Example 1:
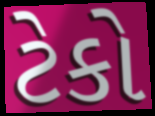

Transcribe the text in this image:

ટેકો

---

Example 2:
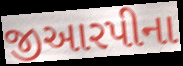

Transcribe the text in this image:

જીઆરપીના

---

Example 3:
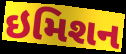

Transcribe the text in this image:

ઇમિશન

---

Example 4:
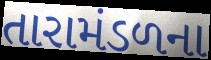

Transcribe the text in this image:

તારામંડળના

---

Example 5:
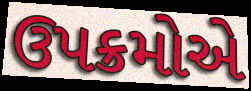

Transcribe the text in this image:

ઉપક્રમોએ